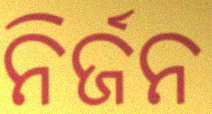
ନିର୍ଜନ